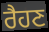
ਰੈਹਣ